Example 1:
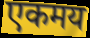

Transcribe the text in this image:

एकमय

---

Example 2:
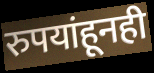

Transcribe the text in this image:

रुपयांहूनही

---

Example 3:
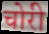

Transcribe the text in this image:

चोरी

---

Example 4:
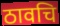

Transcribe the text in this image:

ठावचि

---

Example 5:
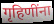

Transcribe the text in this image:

गृहिणींना